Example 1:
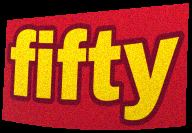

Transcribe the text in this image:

fifty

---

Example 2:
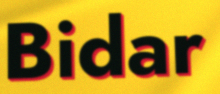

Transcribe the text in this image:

Bidar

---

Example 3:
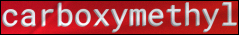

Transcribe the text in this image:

carboxymethyl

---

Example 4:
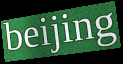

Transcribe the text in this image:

beijing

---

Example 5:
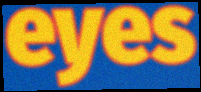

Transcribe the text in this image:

eyes